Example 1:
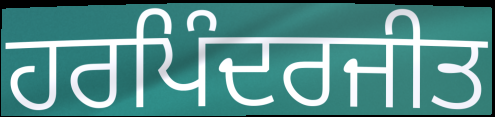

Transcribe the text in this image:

ਹਰਪਿੰਦਰਜੀਤ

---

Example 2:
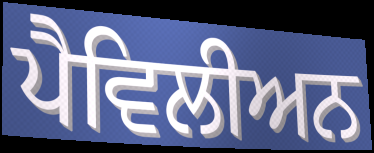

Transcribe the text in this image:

ਪੈਵਿਲੀਅਨ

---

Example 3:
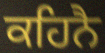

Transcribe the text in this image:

ਕਹਿਨੈ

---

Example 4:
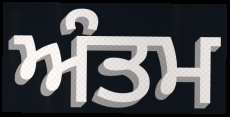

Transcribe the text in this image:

ਅੰਤਮ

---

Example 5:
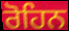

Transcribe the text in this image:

ਰੋਹਿਨ